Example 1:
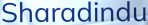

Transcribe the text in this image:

Sharadindu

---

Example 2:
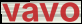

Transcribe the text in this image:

vavo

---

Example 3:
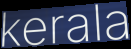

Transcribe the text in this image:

kerala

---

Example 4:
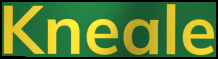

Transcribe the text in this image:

Kneale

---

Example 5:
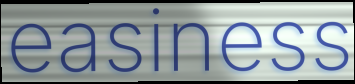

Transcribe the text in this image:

easiness